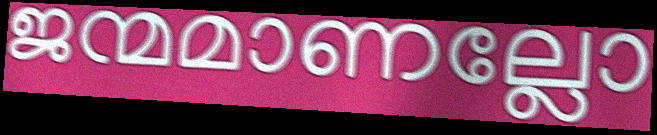
ജന്മമാണല്ലോ